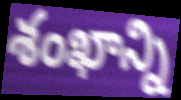
శంఖాన్ని